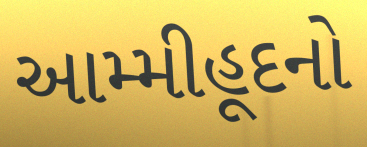
આમ્મીહૂદનો